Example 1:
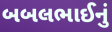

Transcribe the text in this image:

બબલભાઈનું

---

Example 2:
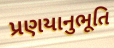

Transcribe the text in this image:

પ્રણયાનુભૂતિ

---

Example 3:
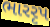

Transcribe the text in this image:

ભારરૃપ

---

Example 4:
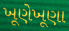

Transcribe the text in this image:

ખૂણેખૂણા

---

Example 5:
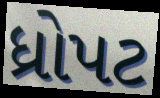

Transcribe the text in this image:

ધ્રોપટ